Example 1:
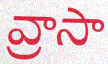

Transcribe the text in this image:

వ్రాసా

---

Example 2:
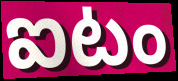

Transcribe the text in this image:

ఐటం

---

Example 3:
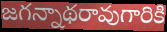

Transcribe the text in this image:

జగన్నాథరావుగారికి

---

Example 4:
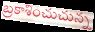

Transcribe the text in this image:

బ్రకాశించుచున్న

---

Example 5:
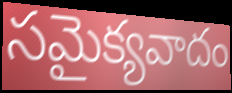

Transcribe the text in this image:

సమైక్యవాదం